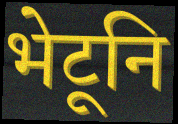
भेटूनि